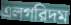
এলগরিদম